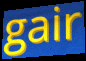
gair